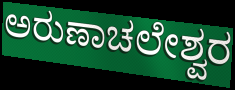
ಅರುಣಾಚಲೇಶ್ವರ